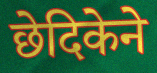
छेदिकेने